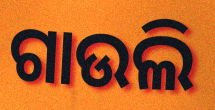
ଗାଉଲି